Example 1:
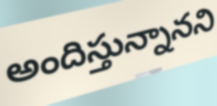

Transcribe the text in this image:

అందిస్తున్నానని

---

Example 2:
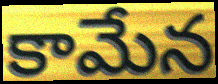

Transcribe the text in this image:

కామేన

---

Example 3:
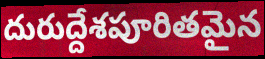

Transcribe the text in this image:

దురుద్దేశపూరితమైన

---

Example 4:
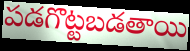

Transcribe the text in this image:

పడగొట్టబడతాయి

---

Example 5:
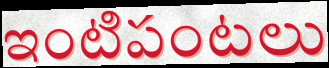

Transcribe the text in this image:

ఇంటిపంటలు